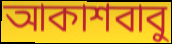
আকাশবাবু